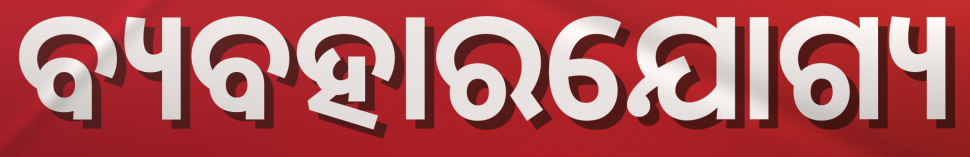
ବ୍ୟବହାରଯୋଗ୍ୟ